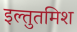
इल्तुतमिश